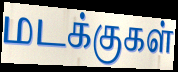
மடக்குகள்